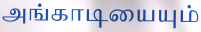
அங்காடியையும்